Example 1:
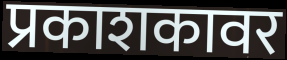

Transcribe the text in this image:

प्रकाशकावर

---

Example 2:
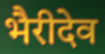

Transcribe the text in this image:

भैरीदेव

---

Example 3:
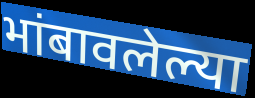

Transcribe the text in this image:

भांबावलेल्या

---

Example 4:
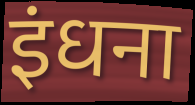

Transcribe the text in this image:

इंधना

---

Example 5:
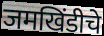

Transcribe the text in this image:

जमखिंडीचे